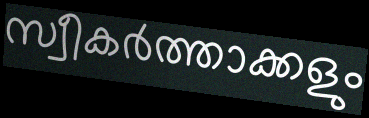
സ്വീകർത്താക്കളും